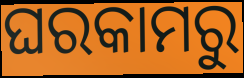
ଘରକାମରୁ